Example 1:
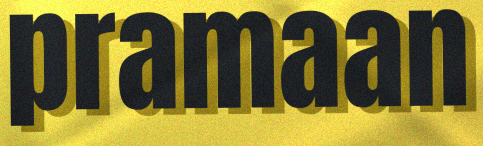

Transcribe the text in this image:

pramaan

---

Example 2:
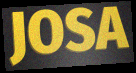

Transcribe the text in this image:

JOSA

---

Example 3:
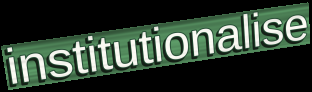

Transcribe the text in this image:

institutionalise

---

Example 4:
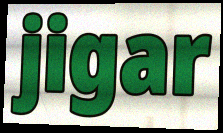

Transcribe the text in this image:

jigar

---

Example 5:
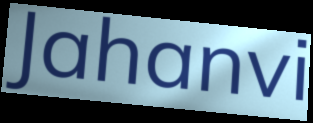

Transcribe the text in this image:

Jahanvi